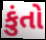
કુંતો